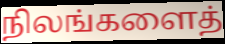
நிலங்களைத்